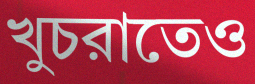
খুচরাতেও